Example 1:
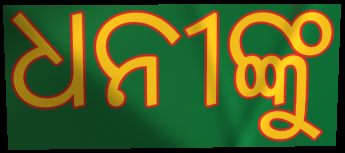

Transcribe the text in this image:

ଧନୀଙ୍କୁ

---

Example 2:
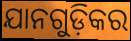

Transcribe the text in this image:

ଯାନଗୁଡ଼ିକର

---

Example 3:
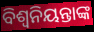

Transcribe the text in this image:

ବିଶ୍ବନିୟନ୍ତାଙ୍କ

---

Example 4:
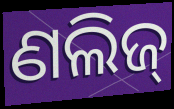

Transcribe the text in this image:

ଣଲିଜ୍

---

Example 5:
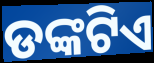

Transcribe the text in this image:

ଡଙ୍କଟିଏ